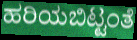
ಹರಿಯಬಿಟ್ಟಂತೆ